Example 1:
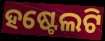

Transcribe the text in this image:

ହଷ୍ଟେଲଟି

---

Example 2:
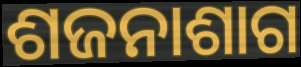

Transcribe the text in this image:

ଶଜନାଶାଗ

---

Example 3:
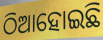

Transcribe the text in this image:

ଠିଆହୋଇଛି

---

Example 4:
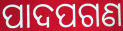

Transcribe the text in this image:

ପାଦପଗଣ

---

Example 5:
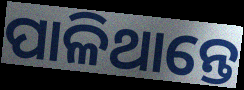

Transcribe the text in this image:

ପାଳିଥାନ୍ତେ